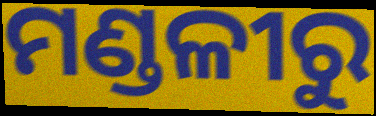
ମଣ୍ଡଳୀରୁ